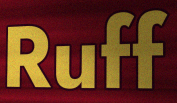
Ruff